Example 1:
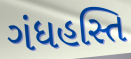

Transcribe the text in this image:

ગંધહસ્તિ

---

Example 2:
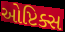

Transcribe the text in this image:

ઓપ્ટિક્સ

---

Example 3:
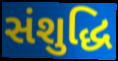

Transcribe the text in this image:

સંશુદ્ધિ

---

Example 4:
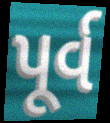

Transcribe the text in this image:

પૂર્વ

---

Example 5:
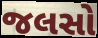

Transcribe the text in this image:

જલસો